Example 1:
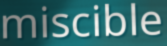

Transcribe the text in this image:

miscible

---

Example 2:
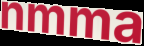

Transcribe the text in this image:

nmma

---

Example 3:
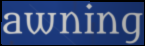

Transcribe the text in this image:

awning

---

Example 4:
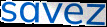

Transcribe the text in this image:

savez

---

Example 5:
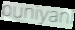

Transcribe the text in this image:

puniyani